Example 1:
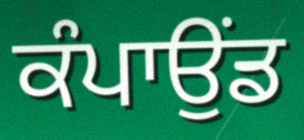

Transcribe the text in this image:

ਕੰਪਾਉਂਡ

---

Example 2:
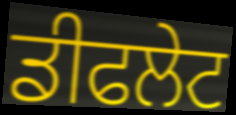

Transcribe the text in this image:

ਡੀਫਲੇਟ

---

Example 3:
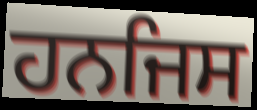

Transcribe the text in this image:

ਹਨਜਿਸ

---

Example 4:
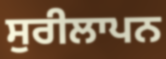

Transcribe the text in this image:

ਸੁਰੀਲਾਪਨ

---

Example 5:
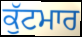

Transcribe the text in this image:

ਕੁੱਟਮਾਰ